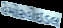
હેમોરહોઇડલ